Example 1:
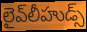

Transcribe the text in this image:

లైవ్‌లీహుడ్స్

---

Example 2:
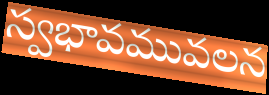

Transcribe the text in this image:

స్వభావమువలన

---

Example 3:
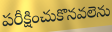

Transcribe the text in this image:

పరీక్షించుకొనవలెను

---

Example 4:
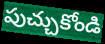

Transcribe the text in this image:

పుచ్చుకోండి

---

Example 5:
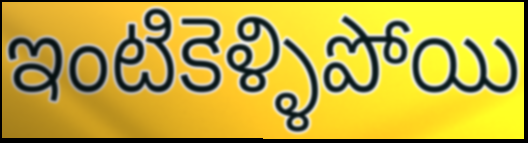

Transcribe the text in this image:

ఇంటికెళ్ళిపోయి